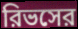
রিভসের